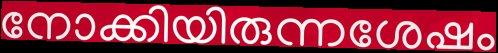
നോക്കിയിരുന്നശേഷം